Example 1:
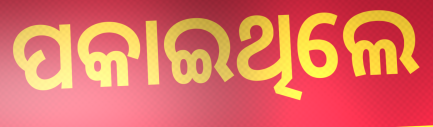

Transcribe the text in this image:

ପକାଇଥିଲେ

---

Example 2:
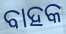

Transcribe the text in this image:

ବାହକ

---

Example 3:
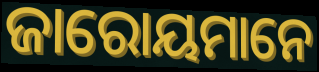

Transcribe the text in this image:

ଜାରୋୟମାନେ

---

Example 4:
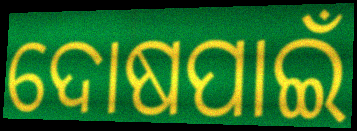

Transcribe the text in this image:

ଦୋଷପାଇଁ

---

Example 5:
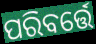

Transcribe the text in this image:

ପରିବର୍ତ୍ତେ